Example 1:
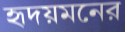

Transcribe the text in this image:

হৃদয়মনের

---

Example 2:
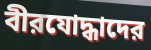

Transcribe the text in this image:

বীরযোদ্ধাদের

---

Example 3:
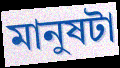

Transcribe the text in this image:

মানুষটা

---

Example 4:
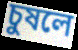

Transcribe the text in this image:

চুষলে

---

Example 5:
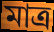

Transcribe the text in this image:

মাত্র